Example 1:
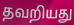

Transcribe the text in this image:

தவறியது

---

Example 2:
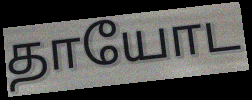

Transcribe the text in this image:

தாயோட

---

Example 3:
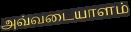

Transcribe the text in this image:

அவ்வடையாளம்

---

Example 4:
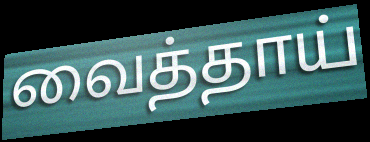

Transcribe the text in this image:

வைத்தாய்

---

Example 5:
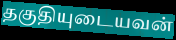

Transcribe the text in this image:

தகுதியுடையவன்